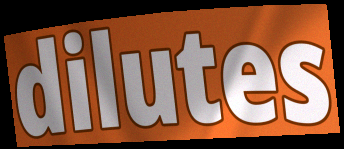
dilutes